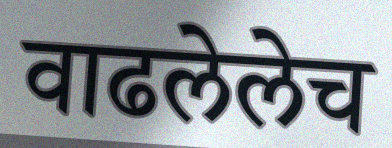
वाढलेलेच